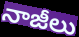
నాజీలు